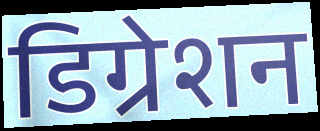
डिग्रेशन